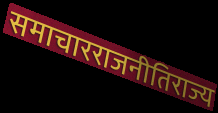
समाचारराजनीतिराज्य